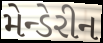
મેન્ડેરીન